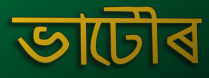
ভাটৌৰ